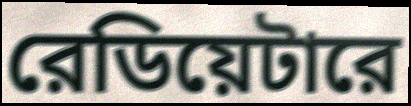
রেডিয়েটারে